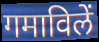
गमाविलें